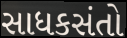
સાધકસંતો